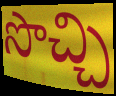
సొచ్చి